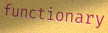
functionary